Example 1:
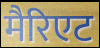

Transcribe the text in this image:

मैरिएट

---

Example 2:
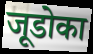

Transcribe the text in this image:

जूडोका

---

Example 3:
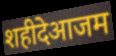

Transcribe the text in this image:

शहीदेआजम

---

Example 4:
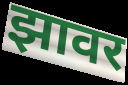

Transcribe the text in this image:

झावर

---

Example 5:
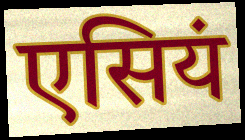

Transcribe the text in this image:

एसियं